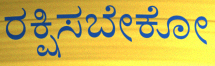
ರಕ್ಷಿಸಬೇಕೋ